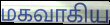
மகவாகிய